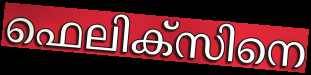
ഫെലിക്സിനെ